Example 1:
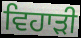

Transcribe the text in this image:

ਵਿਹਾੜੀ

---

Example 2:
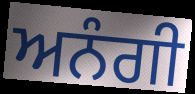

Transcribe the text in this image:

ਅਨੰਗੀ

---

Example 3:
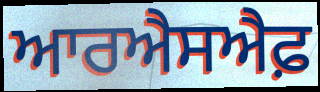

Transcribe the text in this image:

ਆਰਐਸਐਫ਼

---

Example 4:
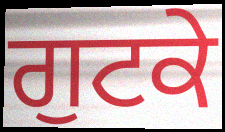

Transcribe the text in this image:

ਗੁਟਕੇ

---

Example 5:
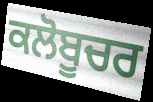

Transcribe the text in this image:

ਕਲੋਬੂਚਰ